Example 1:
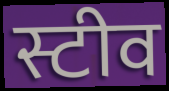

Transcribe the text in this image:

स्‍टीव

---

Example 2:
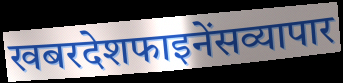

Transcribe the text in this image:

खबरदेशफाइनेंसव्यापार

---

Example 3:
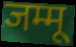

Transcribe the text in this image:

जम्मू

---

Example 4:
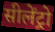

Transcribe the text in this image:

सीलेंट्रो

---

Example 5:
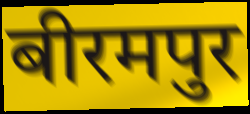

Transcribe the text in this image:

बीरमपुर